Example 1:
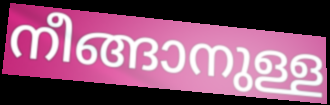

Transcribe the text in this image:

നീങ്ങാനുള്ള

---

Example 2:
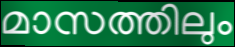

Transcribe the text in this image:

മാസത്തിലും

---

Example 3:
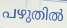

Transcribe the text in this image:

പഴുതിൽ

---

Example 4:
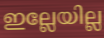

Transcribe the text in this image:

ഇല്ലേയില്ല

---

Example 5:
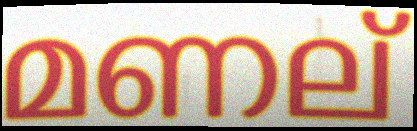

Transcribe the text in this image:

മണല്